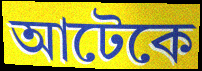
আটেকে